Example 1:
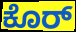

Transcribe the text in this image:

ಕೊರ್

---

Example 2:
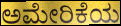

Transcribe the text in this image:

ಅಮೇರಿಕೆಯ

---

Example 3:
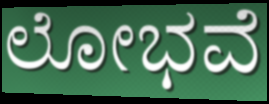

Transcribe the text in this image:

ಲೋಭವೆ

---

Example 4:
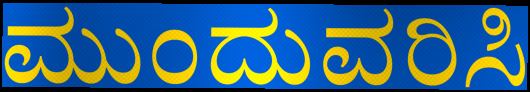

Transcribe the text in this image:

ಮುಂದುವರಿಸಿ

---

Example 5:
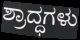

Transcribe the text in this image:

ಶ್ರಾದ್ಧಗಳು